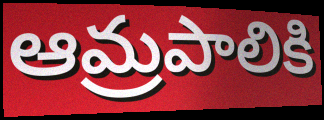
ఆమ్రపాలికి